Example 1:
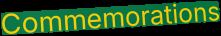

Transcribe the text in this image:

Commemorations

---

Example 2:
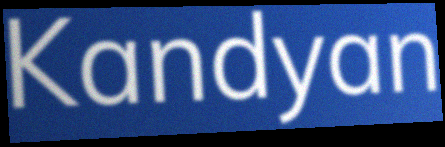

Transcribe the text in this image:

Kandyan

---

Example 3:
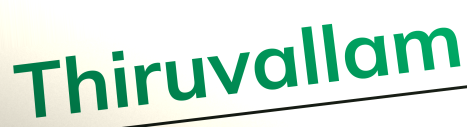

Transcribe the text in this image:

Thiruvallam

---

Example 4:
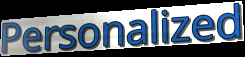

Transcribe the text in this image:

Personalized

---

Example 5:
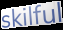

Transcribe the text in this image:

skilful